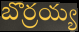
బొర్రయ్య